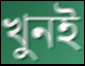
খুনই